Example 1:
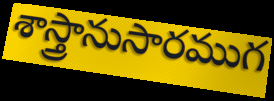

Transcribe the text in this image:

శాస్త్రానుసారముగ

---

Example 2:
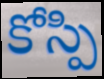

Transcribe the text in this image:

కోస్పి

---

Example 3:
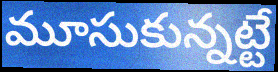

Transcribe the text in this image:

మూసుకున్నట్టే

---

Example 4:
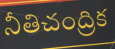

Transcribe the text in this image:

నీతిచంద్రిక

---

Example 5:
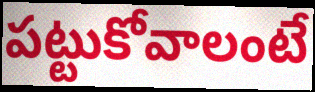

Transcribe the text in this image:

పట్టుకోవాలంటే